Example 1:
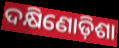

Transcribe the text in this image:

ଦକ୍ଷିଣୋଡ଼ିଶା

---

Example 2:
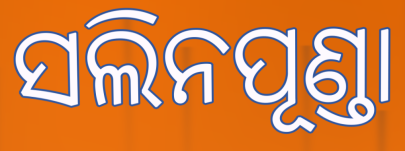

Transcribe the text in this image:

ସଲିନପୂଣ୍ଡା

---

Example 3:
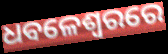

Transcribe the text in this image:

ଧବଳେଶ୍ଵରରେ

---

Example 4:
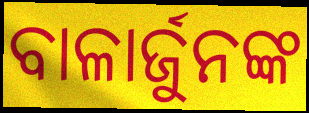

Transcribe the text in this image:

ବାଳାର୍ଜୁନଙ୍କ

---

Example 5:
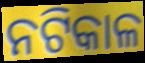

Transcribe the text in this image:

ନଟିକାଳ